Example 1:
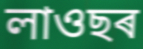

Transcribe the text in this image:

লাওছৰ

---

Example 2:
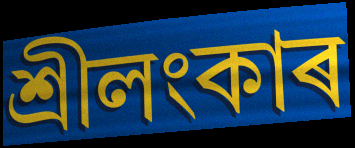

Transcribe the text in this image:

শ্ৰীলংকাৰ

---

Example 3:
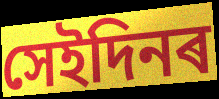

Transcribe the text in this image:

সেইদিনৰ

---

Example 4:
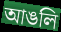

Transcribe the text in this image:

আঙলি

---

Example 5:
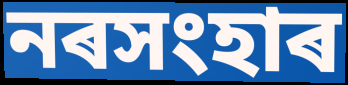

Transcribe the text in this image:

নৰসংহাৰ